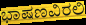
ಭಾಷಣವಿರಲಿ